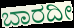
ಬಾರದೀ